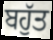
ਬਹੁੱਤ